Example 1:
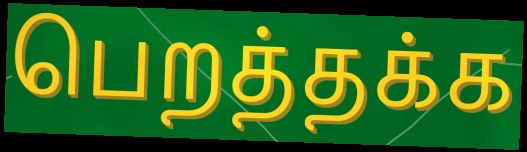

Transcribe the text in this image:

பெறத்தக்க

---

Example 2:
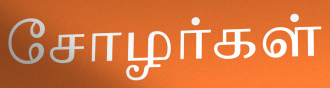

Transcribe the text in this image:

சோழர்கள்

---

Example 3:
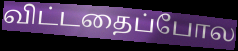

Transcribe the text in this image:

விட்டதைப்போல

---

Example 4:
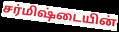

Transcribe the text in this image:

சர்மிஷ்டையின்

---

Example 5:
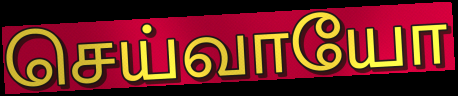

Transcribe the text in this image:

செய்வாயோ